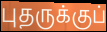
புதருக்குப்